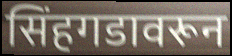
सिंहगडावरून